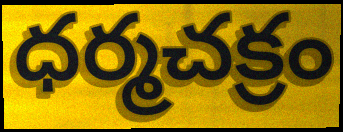
ధర్మచక్రం